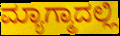
ಮ್ಯಾಗ್ಮಾದಲ್ಲಿ